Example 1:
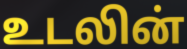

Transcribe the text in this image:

உடலின்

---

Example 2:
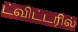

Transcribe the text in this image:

ட்விட்டரில்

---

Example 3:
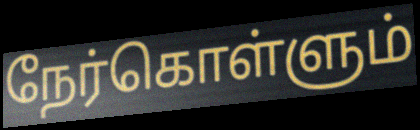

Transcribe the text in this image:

நேர்கொள்ளும்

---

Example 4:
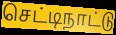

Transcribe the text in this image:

செட்டிநாட்டு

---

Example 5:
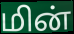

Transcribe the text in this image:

மின்